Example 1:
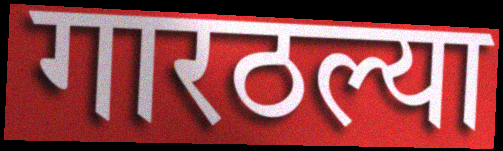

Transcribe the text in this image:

गारठल्या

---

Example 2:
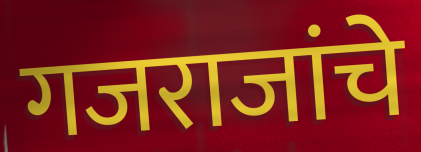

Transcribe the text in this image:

गजराजांचे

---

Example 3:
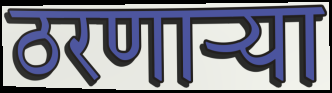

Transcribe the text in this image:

ठरणाऱ्या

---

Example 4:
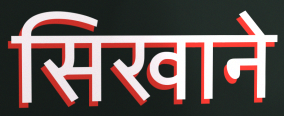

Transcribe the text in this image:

सिखाने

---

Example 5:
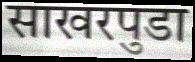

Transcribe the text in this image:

साखरपुडा